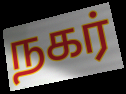
நகர்